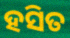
ହସିତ